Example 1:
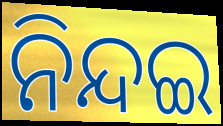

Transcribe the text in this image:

ନିନ୍ଦଇ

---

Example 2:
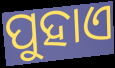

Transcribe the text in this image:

ପୁହାଏ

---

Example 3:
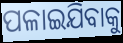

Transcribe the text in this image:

ପଳାଇଯିବାକୁ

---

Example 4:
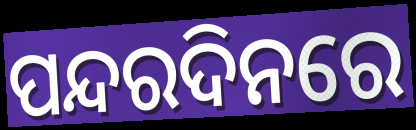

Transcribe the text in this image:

ପନ୍ଦରଦିନରେ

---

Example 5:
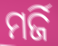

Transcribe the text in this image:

ମର୍ଜି